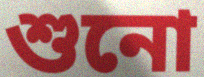
শুনো